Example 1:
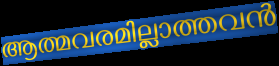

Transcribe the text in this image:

ആത്മവരമില്ലാത്തവൻ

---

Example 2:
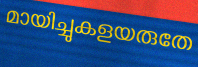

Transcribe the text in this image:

മായിച്ചുകളയരുതേ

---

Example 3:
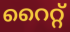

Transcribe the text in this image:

റൈറ്റ്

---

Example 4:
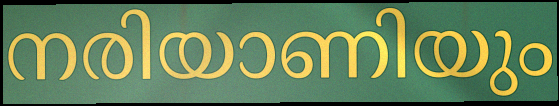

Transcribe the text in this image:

നരിയാണിയും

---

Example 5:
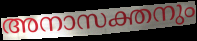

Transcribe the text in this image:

അനാസക്തനും